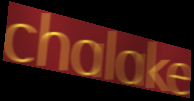
chalake